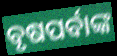
ବୃଷପର୍ବାଙ୍କ